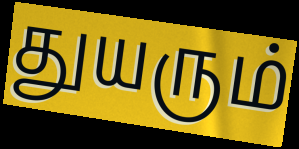
துயரும்